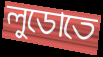
লুডোতে